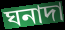
ঘনাদা